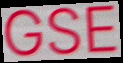
GSE